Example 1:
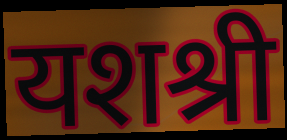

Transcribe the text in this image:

यशश्री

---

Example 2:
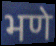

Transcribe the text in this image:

भणे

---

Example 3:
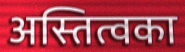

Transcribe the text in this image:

अस्तित्वका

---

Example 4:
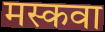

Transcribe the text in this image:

मस्कवा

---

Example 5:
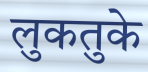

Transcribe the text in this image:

लुकतुके